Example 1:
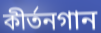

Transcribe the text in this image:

কীর্তনগান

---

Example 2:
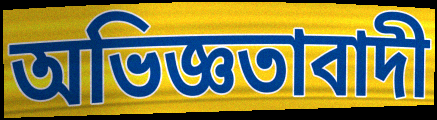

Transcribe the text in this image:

অভিজ্ঞতাবাদী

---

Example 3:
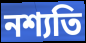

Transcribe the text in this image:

নশ্যতি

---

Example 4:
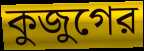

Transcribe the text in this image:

কুজুগের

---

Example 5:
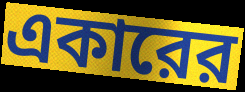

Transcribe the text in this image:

একারের